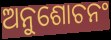
ଅନୁଶୋଚନଂ